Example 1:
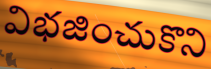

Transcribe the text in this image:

విభజించుకొని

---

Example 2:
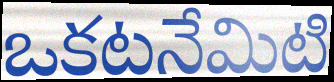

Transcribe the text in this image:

ఒకటనేమిటి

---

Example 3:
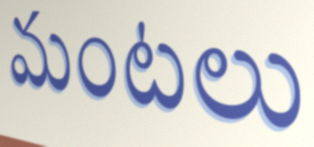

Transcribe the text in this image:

మంటలు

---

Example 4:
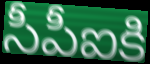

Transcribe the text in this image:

సీపీఐకి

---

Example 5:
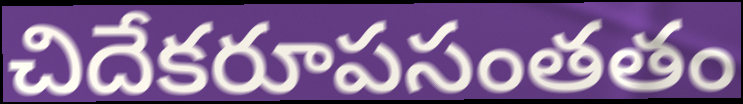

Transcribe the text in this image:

చిదేకరూపసంతతం